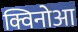
क्विनोआ